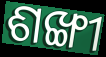
ଶଙ୍ଖୀ